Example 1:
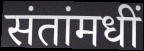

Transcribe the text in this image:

संतांमधीं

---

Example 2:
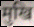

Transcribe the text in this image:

मुखि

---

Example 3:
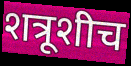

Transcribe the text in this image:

शत्रूशीच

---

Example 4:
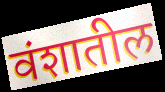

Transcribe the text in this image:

वंशातील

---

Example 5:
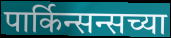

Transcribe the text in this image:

पार्किन्सन्सच्या